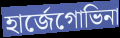
হার্জেগোভিনা